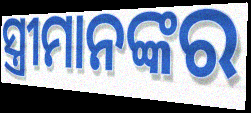
ସ୍ତ୍ରୀମାନଙ୍କର